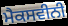
ਮੈਕਸਵੀਨੀ